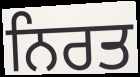
ਨਿਰਤ